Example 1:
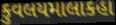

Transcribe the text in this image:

કુવલયમાલાકહા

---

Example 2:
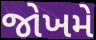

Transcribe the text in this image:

જોખમે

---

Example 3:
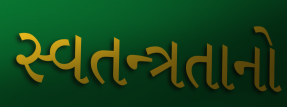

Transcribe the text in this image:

સ્વતન્ત્રતાનો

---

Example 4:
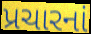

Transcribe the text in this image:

પ્રચારનાં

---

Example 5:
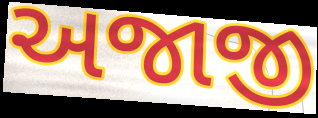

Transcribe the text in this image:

અજાજી